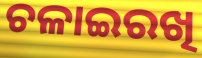
ଚଳାଇରଖି